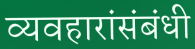
व्यवहारांसंबंधी